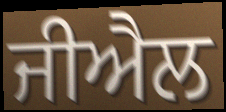
ਜੀਐਲ